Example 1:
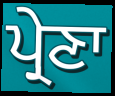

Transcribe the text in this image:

ਪ੍ਰੇਣਾ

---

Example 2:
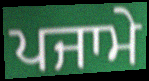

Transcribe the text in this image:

ਪਜਾਮੇ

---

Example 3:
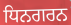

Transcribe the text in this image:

ਧਿਨਗਰਨ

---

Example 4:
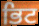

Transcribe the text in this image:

ਭਿਟ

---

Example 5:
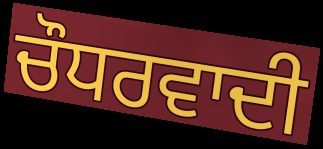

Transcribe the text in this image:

ਚੌਧਰਵਾਦੀ